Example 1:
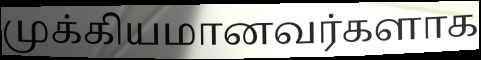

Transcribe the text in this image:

முக்கியமானவர்களாக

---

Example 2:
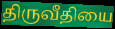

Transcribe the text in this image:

திருவீதியை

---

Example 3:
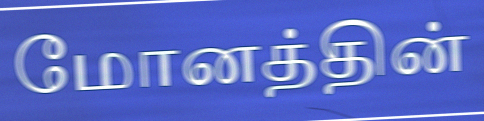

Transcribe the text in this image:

மோனத்தின்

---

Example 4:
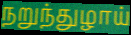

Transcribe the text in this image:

நறுந்துழாய்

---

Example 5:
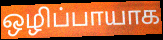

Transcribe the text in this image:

ஒழிப்பாயாக